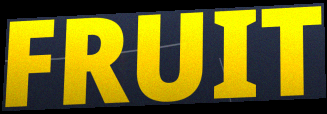
FRUIT